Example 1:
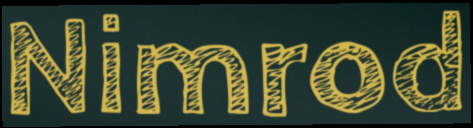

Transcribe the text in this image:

Nimrod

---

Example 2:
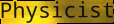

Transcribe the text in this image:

Physicist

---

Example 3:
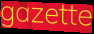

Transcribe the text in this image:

gazette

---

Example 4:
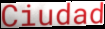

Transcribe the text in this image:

Ciudad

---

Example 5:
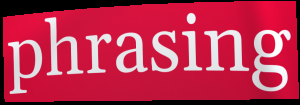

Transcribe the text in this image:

phrasing